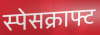
स्पेसक्राफ्ट